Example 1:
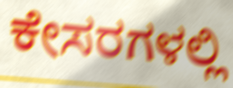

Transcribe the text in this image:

ಕೇಸರಗಳಲ್ಲಿ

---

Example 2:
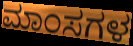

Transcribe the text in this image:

ಮಾಂಸಗಳ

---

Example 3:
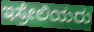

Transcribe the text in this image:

ಇಸ್ರೇಲಿಯರು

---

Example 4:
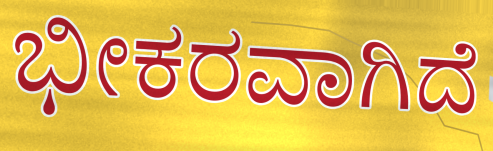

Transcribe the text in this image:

ಭೀಕರವಾಗಿದೆ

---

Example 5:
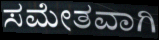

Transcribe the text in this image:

ಸಮೇತವಾಗಿ